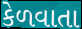
કેળવાતા